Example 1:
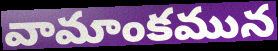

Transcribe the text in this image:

వామాంకమున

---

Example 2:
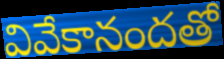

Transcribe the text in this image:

వివేకానందతో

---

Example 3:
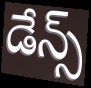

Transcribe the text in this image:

డేన్స్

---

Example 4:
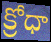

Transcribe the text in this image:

క్రోధా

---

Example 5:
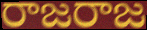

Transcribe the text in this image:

రాజరాజ